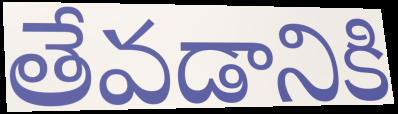
తేవడానికి